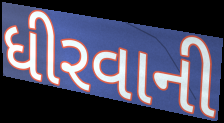
ધીરવાની